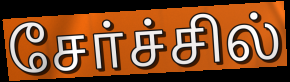
சேர்ச்சில்